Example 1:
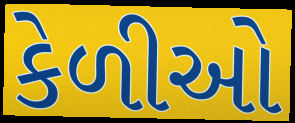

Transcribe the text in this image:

કેળીઓ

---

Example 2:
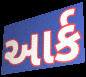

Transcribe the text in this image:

આર્ક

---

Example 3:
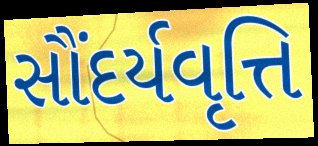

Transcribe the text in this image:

સૌંદર્યવૃત્તિ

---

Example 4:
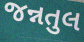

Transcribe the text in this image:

જન્નતુલ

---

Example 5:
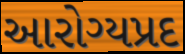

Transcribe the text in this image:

આરોગ્યપ્રદ